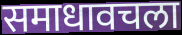
समाधावचला